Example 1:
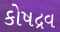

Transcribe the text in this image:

કોષદ્રવ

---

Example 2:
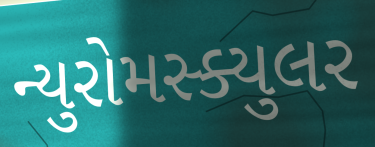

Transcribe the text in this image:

ન્યુરોમસ્ક્યુલર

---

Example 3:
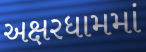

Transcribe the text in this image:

અક્ષરધામમાં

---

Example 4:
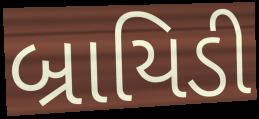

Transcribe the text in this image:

બ્રાયિડી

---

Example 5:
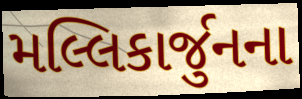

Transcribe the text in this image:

મલ્લિકાર્જુનના